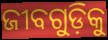
ଜୀବଗୁଡ଼ିକୁ